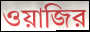
ওয়াজির